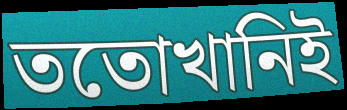
ততোখানিই